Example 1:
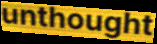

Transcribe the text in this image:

unthought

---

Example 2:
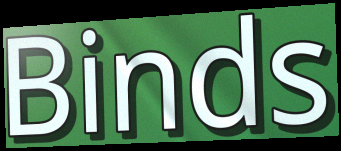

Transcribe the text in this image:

Binds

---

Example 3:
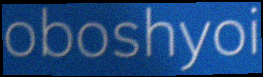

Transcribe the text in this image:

oboshyoi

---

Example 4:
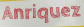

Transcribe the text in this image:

Anriquez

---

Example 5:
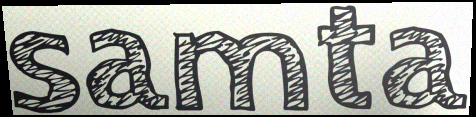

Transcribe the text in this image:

samta